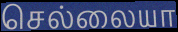
செல்லையா